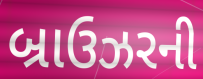
બ્રાઉઝરની